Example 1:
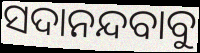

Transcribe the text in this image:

ସଦାନନ୍ଦବାବୁ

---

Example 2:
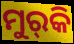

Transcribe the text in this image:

ମୁର୍‌କି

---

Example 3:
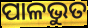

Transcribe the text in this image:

ପାଳଭୁତ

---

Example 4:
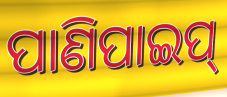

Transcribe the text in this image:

ପାଣିପାଇପ୍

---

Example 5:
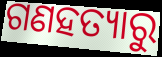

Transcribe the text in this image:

ଗଣହତ୍ୟାରୁ